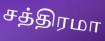
சத்திரமா